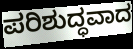
ಪರಿಶುದ್ಧವಾದ